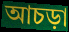
আচড়া